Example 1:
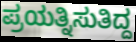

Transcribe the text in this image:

ಪ್ರಯತ್ನಿಸುತಿದ್ದ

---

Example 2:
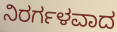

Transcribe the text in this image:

ನಿರರ್ಗಳವಾದ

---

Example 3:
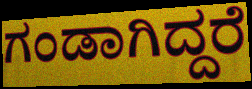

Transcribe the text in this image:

ಗಂಡಾಗಿದ್ದರೆ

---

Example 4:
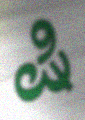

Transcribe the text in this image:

ಷಿ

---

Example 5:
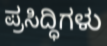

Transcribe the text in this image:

ಪ್ರಸಿದ್ಧಿಗಳು